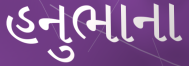
હનુભાના